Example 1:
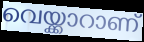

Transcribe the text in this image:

വെയ്ക്കാറാണ്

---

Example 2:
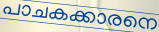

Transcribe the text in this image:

പാചകക്കാരനെ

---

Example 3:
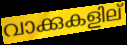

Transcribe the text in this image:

വാക്കുകളില്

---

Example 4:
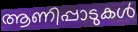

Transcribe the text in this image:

ആണിപ്പാടുകൾ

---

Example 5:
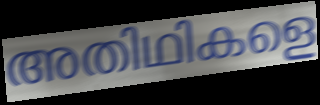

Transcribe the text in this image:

അതിഥികളെ